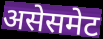
असेसमेट